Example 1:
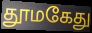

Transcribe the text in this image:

தூமகேது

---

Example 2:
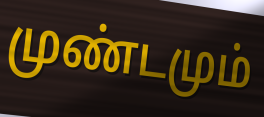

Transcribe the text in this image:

முண்டமும்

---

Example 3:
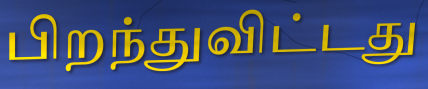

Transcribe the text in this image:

பிறந்துவிட்டது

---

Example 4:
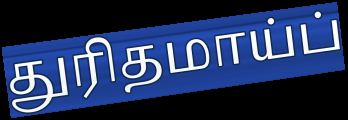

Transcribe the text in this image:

துரிதமாய்ப்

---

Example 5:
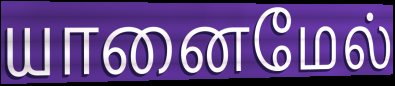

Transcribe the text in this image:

யானைமேல்